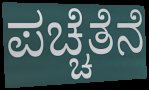
ಪಚ್ಚೆತೆನೆ